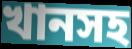
খানসহ